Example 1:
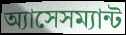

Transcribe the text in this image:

অ্যাসেসম্যান্ট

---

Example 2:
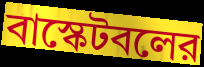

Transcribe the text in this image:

বাস্কেটবলের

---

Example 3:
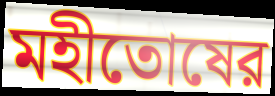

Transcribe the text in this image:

মহীতোষের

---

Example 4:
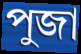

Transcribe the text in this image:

পুজা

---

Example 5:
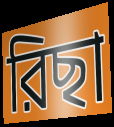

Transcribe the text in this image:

রিছা